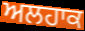
ਅਲਹਾਕ